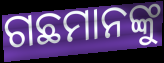
ଗଛମାନଙ୍କୁ